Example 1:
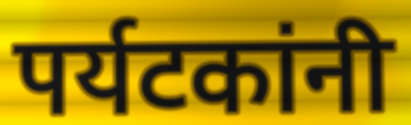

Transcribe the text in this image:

पर्यटकांनी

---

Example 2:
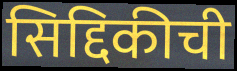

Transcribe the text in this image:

सिद्दिकीची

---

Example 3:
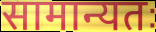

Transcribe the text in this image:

सामान्यतः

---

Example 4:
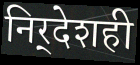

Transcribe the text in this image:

निर्देशही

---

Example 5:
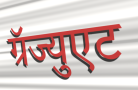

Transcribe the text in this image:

ग्रॅज्युएट